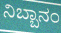
ನಿಬ್ಬಾನಂ